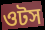
ওটস